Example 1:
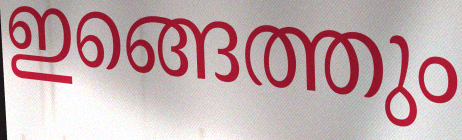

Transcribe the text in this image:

ഇങ്ങെത്തും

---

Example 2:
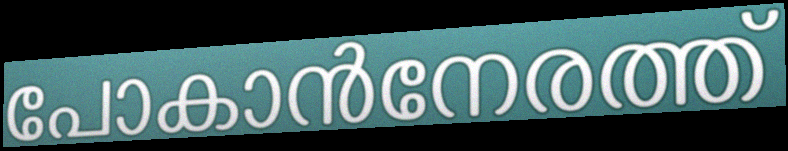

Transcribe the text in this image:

പോകാൻനേരത്ത്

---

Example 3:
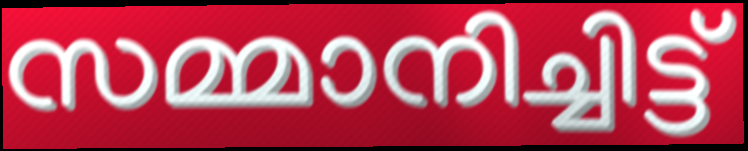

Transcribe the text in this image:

സമ്മാനിച്ചിട്ട്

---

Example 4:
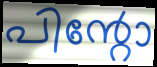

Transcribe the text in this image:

പിന്റോ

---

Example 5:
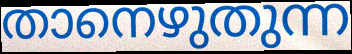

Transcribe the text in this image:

താനെഴുതുന്ന